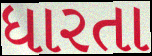
ધારતા